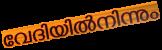
വേദിയിൽനിന്നും